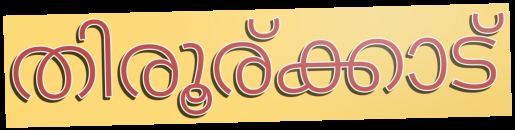
തിരൂര്ക്കാട്